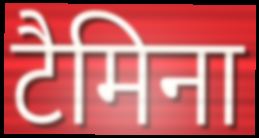
टैमिना